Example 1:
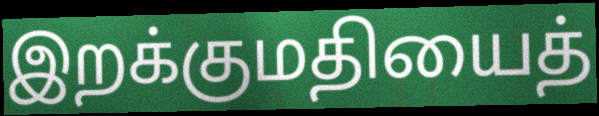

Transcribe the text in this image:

இறக்குமதியைத்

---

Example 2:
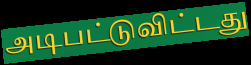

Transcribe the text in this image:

அடிபட்டுவிட்டது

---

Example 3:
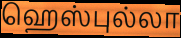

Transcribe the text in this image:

ஹெஸ்புல்லா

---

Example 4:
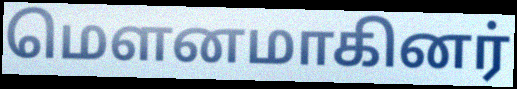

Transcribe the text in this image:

மௌனமாகினர்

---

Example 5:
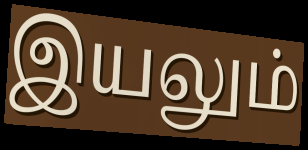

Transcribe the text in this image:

இயலும்